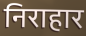
निराहार